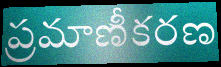
ప్రమాణీకరణ